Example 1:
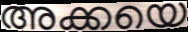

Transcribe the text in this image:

അക്കയെ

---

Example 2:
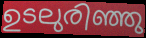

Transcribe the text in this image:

ഉടലുരിഞ്ഞു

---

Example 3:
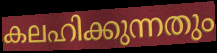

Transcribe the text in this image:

കലഹിക്കുന്നതും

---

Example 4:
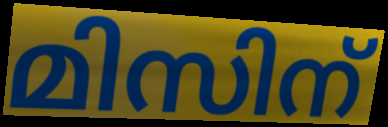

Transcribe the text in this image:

മിസിന്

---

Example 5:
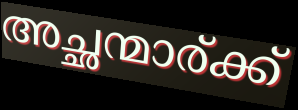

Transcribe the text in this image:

അച്ഛന്മാര്ക്ക്